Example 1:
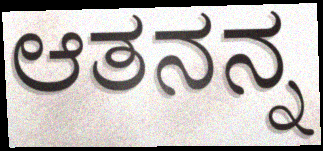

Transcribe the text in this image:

ಆತನನ್ನ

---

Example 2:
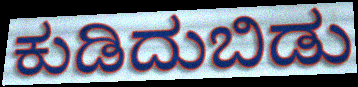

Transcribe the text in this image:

ಕುಡಿದುಬಿಡು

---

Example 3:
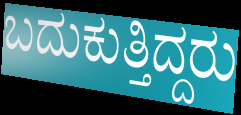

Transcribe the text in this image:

ಬದುಕುತ್ತಿದ್ದರು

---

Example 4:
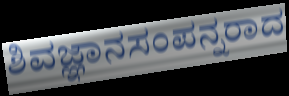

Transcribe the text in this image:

ಶಿವಜ್ಞಾನಸಂಪನ್ನರಾದ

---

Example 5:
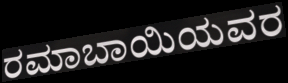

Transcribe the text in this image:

ರಮಾಬಾಯಿಯವರ